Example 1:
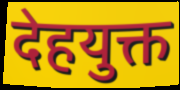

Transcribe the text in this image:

देहयुक्त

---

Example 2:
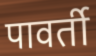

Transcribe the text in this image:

पावर्ती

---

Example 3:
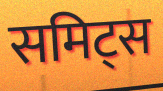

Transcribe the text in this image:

समिट्स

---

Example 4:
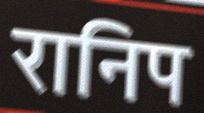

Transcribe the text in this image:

रानिप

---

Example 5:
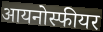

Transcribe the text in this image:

आयनोस्फीयर